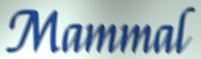
Mammal